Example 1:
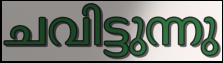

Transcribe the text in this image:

ചവിട്ടുന്നു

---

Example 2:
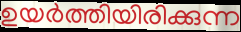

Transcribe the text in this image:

ഉയർത്തിയിരിക്കുന്ന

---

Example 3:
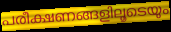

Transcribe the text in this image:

പരീക്ഷണങ്ങളിലൂടെയും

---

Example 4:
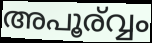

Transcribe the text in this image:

അപൂര്വ്വം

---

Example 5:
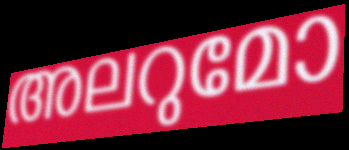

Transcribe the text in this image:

അലറുമോ